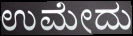
ಉಮೇದು